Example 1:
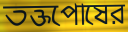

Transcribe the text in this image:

তক্তপোষের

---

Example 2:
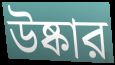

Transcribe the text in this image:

উষ্কার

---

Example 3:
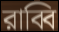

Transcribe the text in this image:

রাব্বি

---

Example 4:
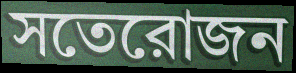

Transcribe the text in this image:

সতেরোজন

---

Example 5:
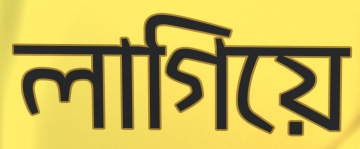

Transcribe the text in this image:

লাগিয়ে